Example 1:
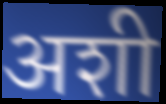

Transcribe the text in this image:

अशी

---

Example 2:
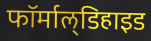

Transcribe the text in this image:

फॉर्माल्डिहाइड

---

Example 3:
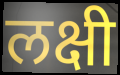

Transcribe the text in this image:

लक्षी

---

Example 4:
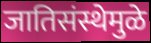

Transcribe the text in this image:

जातिसंस्थेमुळे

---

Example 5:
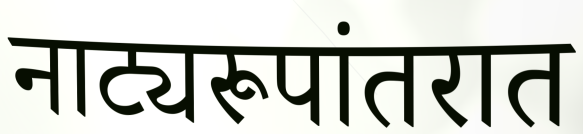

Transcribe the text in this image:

नाट्यरूपांतरात